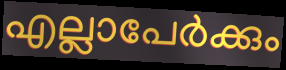
എല്ലാപേർക്കും